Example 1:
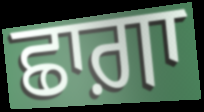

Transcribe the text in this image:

ਛਾਗ਼ਾ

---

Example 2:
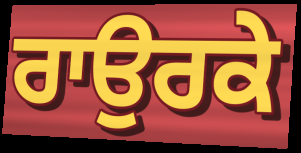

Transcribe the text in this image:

ਰਾਉਰਕੇ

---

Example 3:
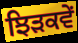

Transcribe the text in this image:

ਝਿੜਕਵੇਂ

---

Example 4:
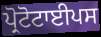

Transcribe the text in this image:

ਪ੍ਰੋਟੋਟਾਈਪਸ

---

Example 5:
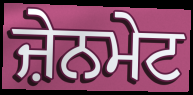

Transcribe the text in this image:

ਜ਼ੇਨਮੇਟ